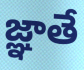
జ్ఞాతే